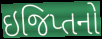
ઇજિપ્તનો